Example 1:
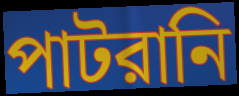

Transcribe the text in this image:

পাটরানি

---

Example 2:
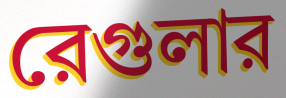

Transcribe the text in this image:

রেগুলার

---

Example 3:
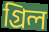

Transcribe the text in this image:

গ্রিল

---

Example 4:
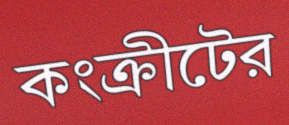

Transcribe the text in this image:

কংক্রীটের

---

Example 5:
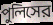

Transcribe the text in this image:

পুলিসের